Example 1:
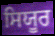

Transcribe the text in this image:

ਸਿਯੂਰ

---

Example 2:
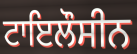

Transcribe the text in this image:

ਟਾਇਲੌਸੀਨ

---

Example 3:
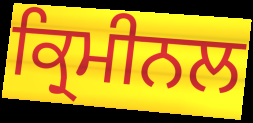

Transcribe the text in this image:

ਕ੍ਰਿਮੀਨਲ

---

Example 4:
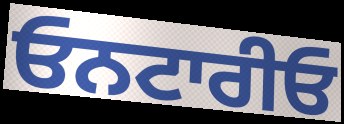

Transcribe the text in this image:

ਓਨਟਾਰੀਓ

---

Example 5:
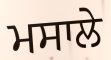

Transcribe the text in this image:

ਮਸਾਲੇ